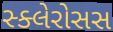
સ્ક્લેરોસસ